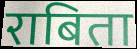
राबिता